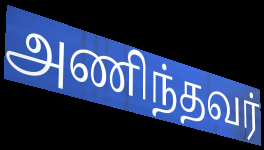
அணிந்தவர்